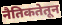
नैतिकतेतून